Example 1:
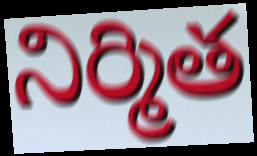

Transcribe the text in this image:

నిర్మిత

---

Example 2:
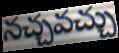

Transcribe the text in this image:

నచ్చవచ్చు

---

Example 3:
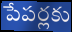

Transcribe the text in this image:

పేపర్లకు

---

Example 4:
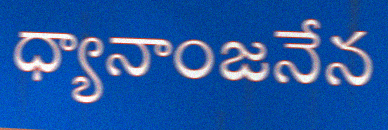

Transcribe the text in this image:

ధ్యానాంజనేన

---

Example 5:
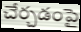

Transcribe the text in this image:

చేర్చడంపై